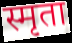
स्मृता